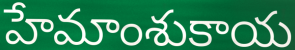
హేమాంశుకాయ